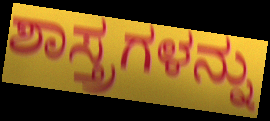
ಶಾಸ್ತ್ರಗಳನ್ನು